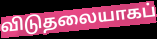
விடுதலையாகப்